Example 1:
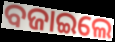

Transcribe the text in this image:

ବଜାଇଲେ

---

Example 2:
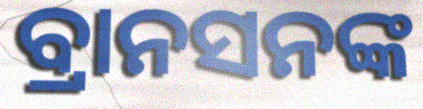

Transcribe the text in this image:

ବ୍ରାନସନଙ୍କ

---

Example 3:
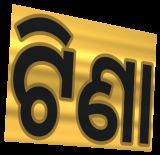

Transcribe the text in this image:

ଟିଣା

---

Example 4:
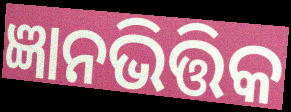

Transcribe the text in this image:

ଜ୍ଞାନଭିତ୍ତିକ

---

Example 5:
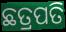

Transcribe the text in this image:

ଛତ୍ରପତି